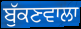
ਬੁੱਕਣਵਾਲਾ